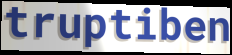
truptiben